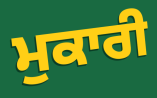
ਮੁਕਾਰੀ